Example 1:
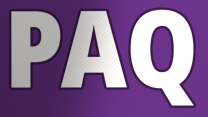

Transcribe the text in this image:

PAQ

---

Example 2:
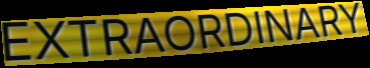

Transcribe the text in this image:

EXTRAORDINARY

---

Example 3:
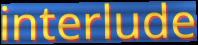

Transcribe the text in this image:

interlude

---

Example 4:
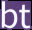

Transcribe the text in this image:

bt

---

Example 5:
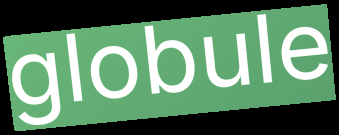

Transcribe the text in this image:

globule